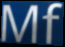
Mf